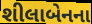
શીલાબેનના